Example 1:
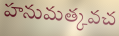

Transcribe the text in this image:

హనుమత్కవచ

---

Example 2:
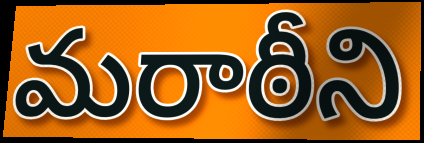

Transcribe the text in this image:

మరాఠీని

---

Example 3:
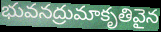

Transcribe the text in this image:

భువనద్రుమాకృతివైన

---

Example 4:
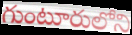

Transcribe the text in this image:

గుంటూరులోని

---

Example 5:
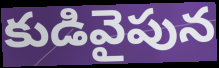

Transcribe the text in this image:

కుడివైపున